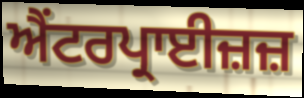
ਐਂਟਰਪ੍ਰਾਈਜ਼ਜ਼